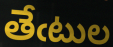
తేఁటుల